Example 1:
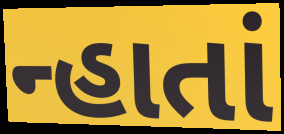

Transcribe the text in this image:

ન્હાતાં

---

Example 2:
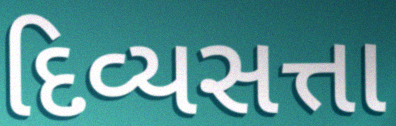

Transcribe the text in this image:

દિવ્યસત્તા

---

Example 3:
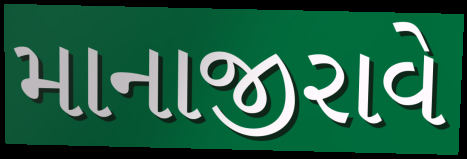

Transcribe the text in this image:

માનાજીરાવે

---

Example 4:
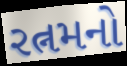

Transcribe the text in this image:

રત્નમનો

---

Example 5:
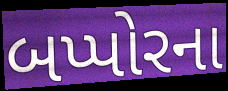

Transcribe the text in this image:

બપ્પોરના